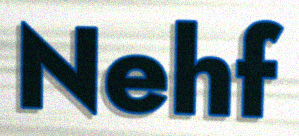
Nehf